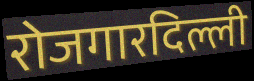
रोजगारदिल्ली